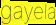
gayela